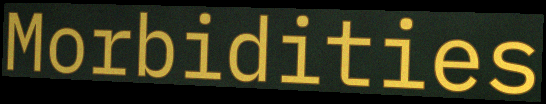
Morbidities